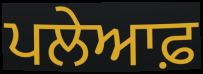
ਪਲੇਆਫ਼